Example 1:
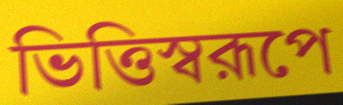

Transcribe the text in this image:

ভিত্তিস্বরূপে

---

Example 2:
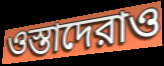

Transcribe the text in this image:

ওস্তাদেরাও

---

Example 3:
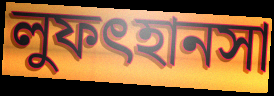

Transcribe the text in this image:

লুফৎহানসা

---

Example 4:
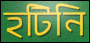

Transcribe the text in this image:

হটিনি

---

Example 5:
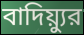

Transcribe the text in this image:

বাদিয়্যুর